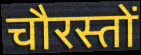
चौरस्तों